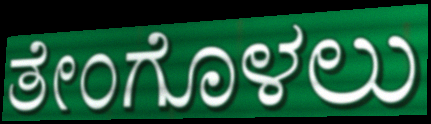
ತೇಂಗೊಳಲು